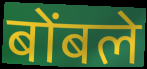
बोंबले